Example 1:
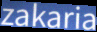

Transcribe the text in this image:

zakaria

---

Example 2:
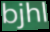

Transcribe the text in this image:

bjhl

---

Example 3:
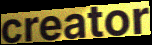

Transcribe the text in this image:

creator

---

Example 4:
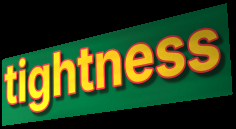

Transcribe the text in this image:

tightness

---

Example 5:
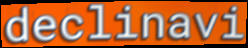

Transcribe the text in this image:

declinavi